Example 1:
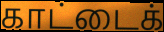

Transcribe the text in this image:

காட்டைக்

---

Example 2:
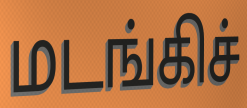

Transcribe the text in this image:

மடங்கிச்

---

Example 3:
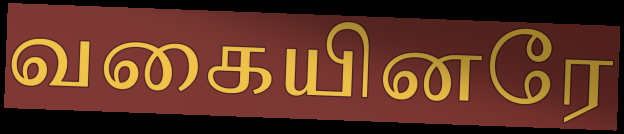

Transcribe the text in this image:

வகையினரே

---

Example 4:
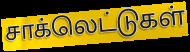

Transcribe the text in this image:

சாக்லெட்டுகள்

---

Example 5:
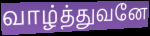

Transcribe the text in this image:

வாழ்த்துவனே